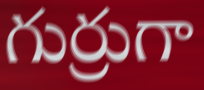
గుర్రుగా